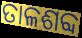
ତାଳଶବ୍ଦ